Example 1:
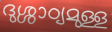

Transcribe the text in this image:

ദുശ്ശാഠ്യമുള്ള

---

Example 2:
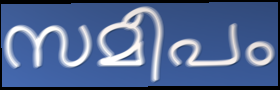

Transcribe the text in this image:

സമീപം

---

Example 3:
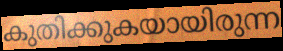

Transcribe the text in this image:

കുതിക്കുകയായിരുന്ന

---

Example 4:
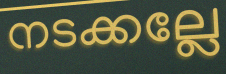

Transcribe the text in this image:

നടക്കല്ലേ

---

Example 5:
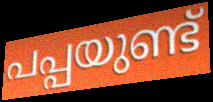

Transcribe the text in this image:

പപ്പയുണ്ട്